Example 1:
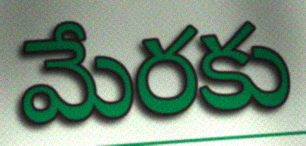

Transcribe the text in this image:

మేరకు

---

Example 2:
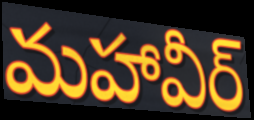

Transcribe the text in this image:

మహావీర్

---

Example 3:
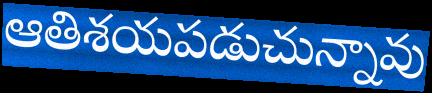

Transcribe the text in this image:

ఆతిశయపడుచున్నావు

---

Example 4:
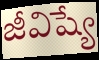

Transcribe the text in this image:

జీవిష్యే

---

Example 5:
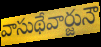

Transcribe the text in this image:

వాసుథేవార్జునౌ